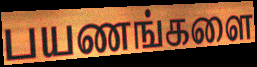
பயணங்களை